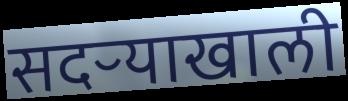
सदऱ्याखाली